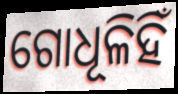
ଗୋଧୂଳିହିଁ